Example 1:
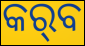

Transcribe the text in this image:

କର୍‌ବ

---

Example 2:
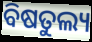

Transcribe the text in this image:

ବିଷତୁଲ୍ୟ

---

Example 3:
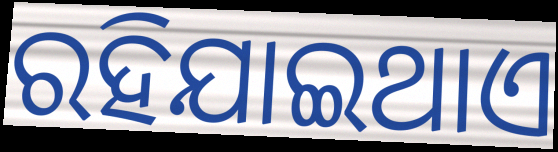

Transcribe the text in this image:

ରହିଯାଇଥାଏ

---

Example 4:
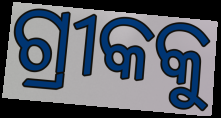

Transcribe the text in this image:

ଗ୍ରୀକକୁ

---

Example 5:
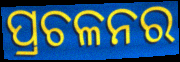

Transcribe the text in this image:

ପ୍ରଚଳନର